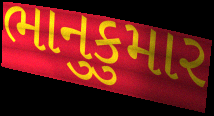
ભાનુકુમાર